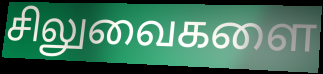
சிலுவைகளை